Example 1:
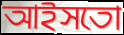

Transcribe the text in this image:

আইসতো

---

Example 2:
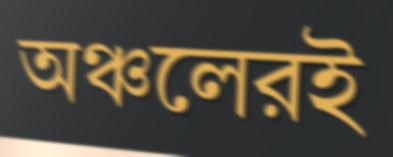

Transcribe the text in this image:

অঞ্চলেরই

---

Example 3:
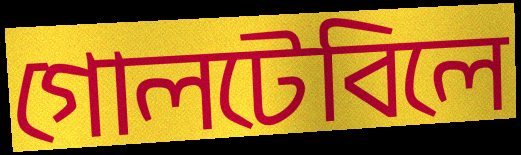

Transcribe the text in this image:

গোলটেবিলে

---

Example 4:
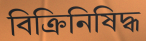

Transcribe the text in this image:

বিক্রিনিষিদ্ধ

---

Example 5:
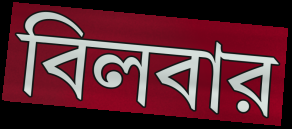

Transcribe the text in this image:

বিলবার